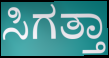
ಸಿಗತ್ತಾ